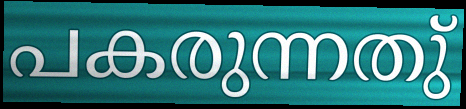
പകരുന്നതു്